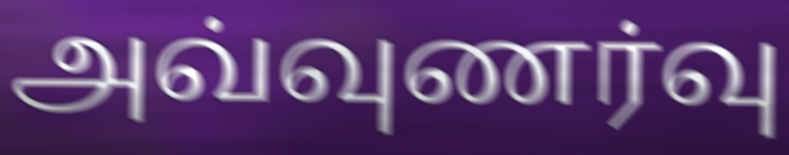
அவ்வுணர்வு